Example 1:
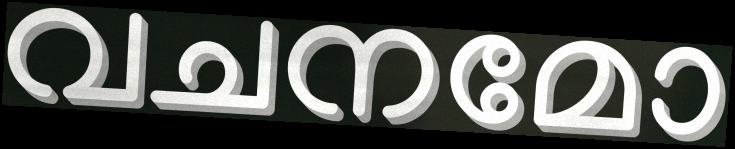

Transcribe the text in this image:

വചനമോ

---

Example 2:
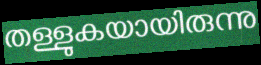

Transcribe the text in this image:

തള്ളുകയായിരുന്നു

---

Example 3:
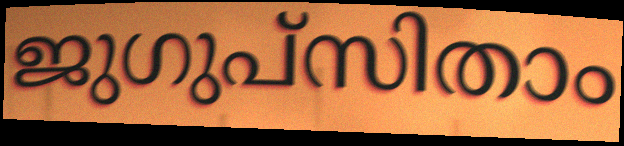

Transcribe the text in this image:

ജുഗുപ്സിതാം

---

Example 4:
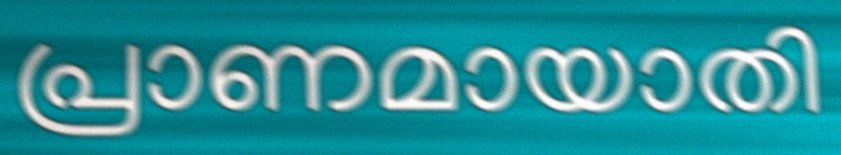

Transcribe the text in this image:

പ്രാണമായാതി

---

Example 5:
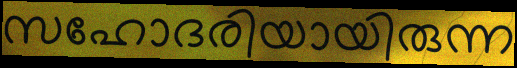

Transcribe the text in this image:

സഹോദരിയായിരുന്ന